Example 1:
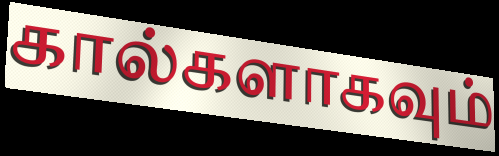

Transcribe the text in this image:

கால்களாகவும்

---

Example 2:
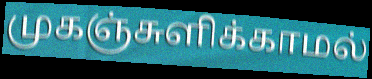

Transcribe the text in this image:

முகஞ்சுளிக்காமல்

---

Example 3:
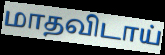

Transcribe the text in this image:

மாதவிடாய்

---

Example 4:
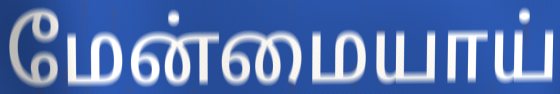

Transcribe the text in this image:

மேன்மையாய்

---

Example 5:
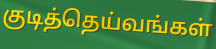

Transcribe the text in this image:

குடித்தெய்வங்கள்